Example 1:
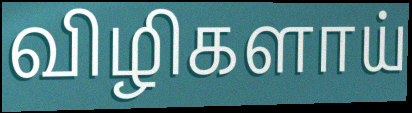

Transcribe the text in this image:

விழிகளாய்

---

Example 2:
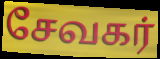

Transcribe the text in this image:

சேவகர்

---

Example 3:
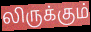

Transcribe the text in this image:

லிருக்கும்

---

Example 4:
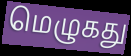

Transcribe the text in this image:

மெழுகது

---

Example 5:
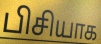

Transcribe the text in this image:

பிசியாக